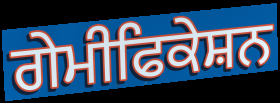
ਗੇਮੀਫਿਕੇਸ਼ਨ